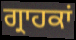
ਗ੍ਰਾਹਕਾਂ